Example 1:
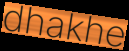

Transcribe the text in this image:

dhakhe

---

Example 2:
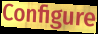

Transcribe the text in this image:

Configure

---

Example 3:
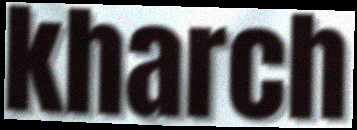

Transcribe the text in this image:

kharch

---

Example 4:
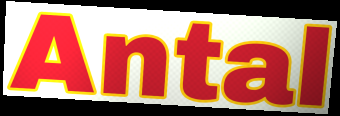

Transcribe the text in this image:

Antal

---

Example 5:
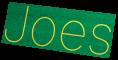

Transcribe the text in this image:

Joes